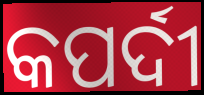
କପର୍ଦୀ